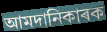
আমদানিকাৰক